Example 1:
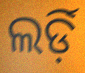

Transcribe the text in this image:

ଲର୍ଡ଼ି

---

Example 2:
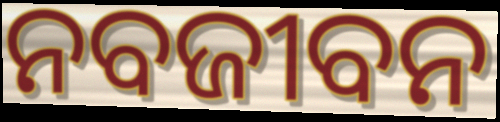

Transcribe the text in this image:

ନବଜୀବନ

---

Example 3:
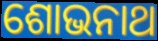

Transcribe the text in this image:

ଶୋଭନାଥ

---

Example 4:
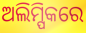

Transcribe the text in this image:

ଅଲିମ୍ପିକରେ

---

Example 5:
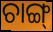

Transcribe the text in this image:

ଚାଙ୍ଗ୍